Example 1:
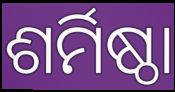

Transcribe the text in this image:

ଶର୍ମିଷ୍ଠା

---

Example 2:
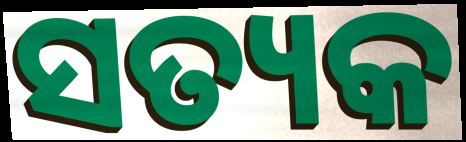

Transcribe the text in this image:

ସତ୍ୟକ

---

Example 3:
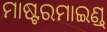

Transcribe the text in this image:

ମାଷ୍ଟରମାଇଣ୍ଡ୍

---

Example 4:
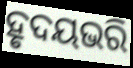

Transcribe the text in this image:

ହୃଦୟଭରି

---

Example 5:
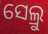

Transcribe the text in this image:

ସେଲ୍ରୁ